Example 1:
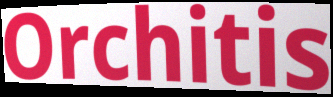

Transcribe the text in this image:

Orchitis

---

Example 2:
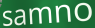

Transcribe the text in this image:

samno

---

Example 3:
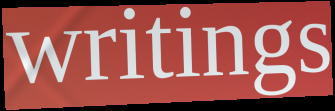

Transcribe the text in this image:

writings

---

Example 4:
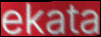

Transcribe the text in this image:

ekata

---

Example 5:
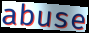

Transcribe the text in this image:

abuse